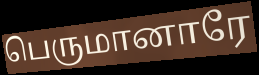
பெருமானாரே